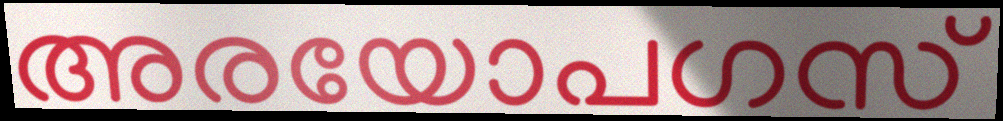
അരയോപഗസ്